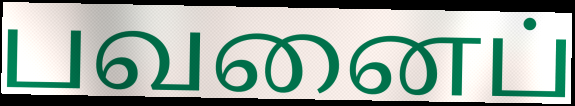
பவனைப்